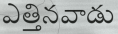
ఎత్తినవాడు